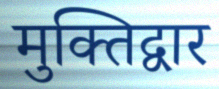
मुक्तिद्वार